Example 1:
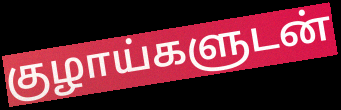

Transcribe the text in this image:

குழாய்களுடன்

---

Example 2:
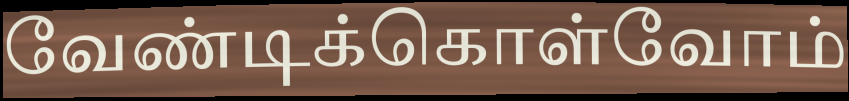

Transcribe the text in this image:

வேண்டிக்கொள்வோம்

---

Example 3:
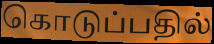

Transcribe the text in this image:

கொடுப்பதில்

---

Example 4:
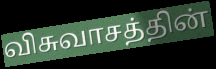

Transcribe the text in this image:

விசுவாசத்தின்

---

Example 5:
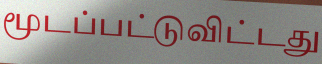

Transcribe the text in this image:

மூடப்பட்டுவிட்டது